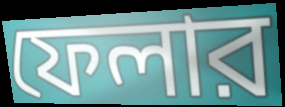
ফেলার